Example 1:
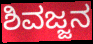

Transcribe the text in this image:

ಶಿವಜ್ಜನ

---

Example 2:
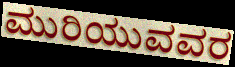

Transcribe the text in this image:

ಮುರಿಯುವವರ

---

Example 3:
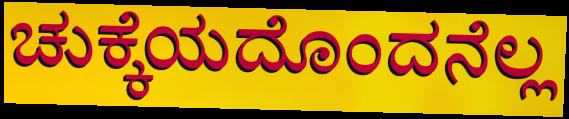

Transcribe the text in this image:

ಚುಕ್ಕೆಯದೊಂದನೆಲ್ಲ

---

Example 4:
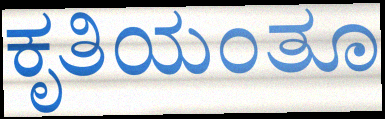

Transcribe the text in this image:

ಕೃತಿಯಂತೂ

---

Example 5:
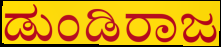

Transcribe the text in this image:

ಡುಂಡಿರಾಜ